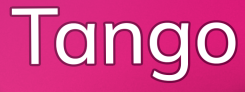
Tango